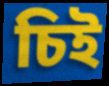
চিই